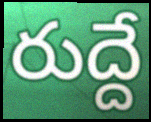
రుద్దే